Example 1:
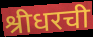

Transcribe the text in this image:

श्रीधरची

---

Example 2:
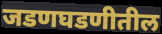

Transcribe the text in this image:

जडणघडणीतील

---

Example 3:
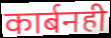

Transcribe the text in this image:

कार्बनही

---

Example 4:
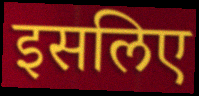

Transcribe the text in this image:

इसलिए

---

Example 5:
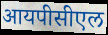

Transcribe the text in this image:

आयपीसीएल